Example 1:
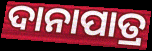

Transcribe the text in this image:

ଦାନାପାତ୍ର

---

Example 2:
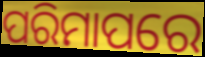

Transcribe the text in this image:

ପରିମାପରେ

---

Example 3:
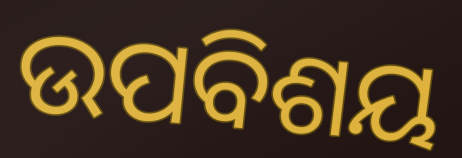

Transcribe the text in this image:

ଉପବିଶୟ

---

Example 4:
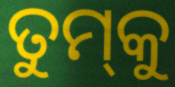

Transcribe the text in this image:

ତୁମ୍‌କୁ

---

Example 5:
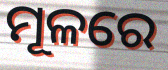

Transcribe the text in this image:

ମୂଳରେ